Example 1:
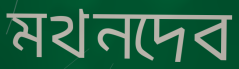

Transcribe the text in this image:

মথনদেব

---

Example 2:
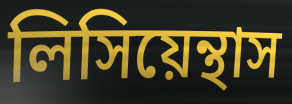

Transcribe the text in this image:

লিসিয়েন্থাস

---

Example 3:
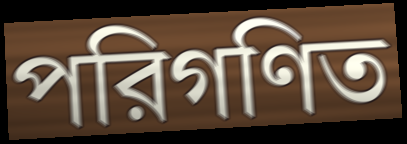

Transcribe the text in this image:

পরিগণিত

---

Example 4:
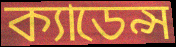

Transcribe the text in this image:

ক্যাডেন্স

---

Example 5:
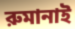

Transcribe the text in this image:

রুমানাই